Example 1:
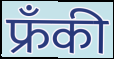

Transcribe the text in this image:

फ्रँकी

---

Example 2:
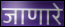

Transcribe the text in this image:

जाणारे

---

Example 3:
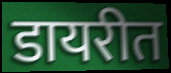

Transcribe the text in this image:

डायरीत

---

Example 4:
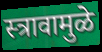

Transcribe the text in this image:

स्त्रावामुळे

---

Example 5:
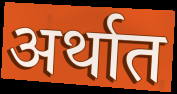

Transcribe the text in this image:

अर्थात